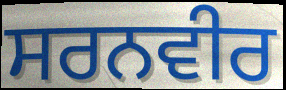
ਸਰਨਵੀਰ